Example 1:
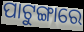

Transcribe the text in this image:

ପାଟୁଙ୍ଗାରେ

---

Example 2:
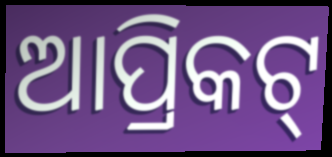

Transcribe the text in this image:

ଆପ୍ରିକଟ୍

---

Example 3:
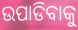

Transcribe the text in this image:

ଉପାଡିବାକୁ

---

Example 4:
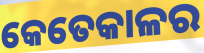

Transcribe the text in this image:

କେତେକାଳର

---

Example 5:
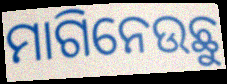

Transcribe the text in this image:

ମାଗିନେଉଛୁ